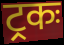
ट्रकः